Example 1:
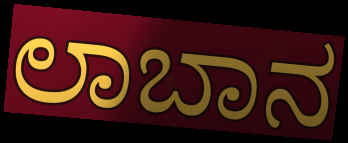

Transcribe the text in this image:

ಲಾಬಾನ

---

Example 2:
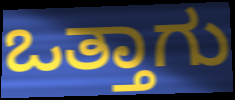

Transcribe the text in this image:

ಒತ್ತಾಗು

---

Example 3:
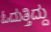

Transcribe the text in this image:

ಓದುತ್ತಿದ್ದು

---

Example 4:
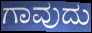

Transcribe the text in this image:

ಗಾವುದು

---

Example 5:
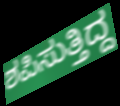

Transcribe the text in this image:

ಶಪಿಸುತ್ತಿದ್ದ